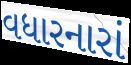
વધારનારાં